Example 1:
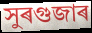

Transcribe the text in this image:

সুৰগুজাৰ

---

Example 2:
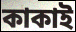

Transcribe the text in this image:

কাকাই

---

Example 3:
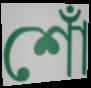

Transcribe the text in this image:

শোঁ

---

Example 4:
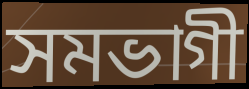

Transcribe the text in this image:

সমভাগী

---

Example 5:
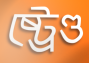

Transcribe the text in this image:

ষ্ট্ৰেণ্ড